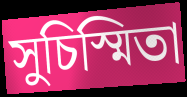
সুচিস্মিতা